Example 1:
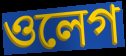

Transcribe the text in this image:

ওলেগ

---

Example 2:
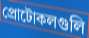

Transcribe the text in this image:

প্রোটোকলগুলি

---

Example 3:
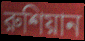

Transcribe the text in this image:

রুশিয়ান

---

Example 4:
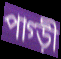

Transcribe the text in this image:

পাগ্ড়ী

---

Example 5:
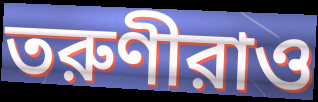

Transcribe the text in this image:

তরুণীরাও